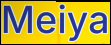
Meiya